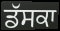
ਡੱਸਕਾ